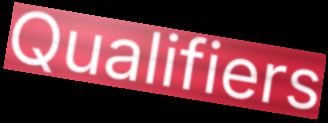
Qualifiers